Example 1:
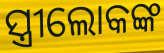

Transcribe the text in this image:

ସ୍ତ୍ରୀଲୋକଙ୍କ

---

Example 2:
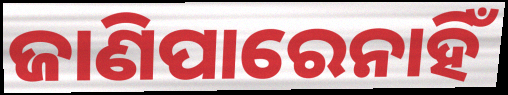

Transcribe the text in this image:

ଜାଣିପାରେନାହିଁ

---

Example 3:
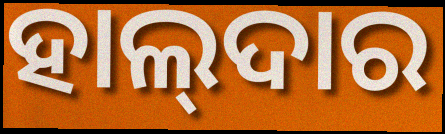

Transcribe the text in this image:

ହାଲ୍‌ଦାର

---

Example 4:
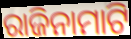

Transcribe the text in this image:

ରାଜିନାମାଟି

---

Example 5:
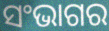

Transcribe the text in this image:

ସଂଭାଗର